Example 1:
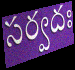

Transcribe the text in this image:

సర్వదః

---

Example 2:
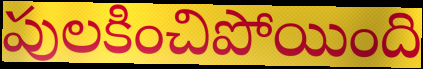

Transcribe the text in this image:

పులకించిపోయింది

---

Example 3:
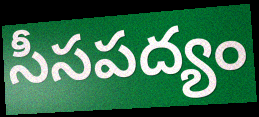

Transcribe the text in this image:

సీసపద్యం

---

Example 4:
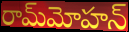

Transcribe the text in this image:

రామ్‌మోహన్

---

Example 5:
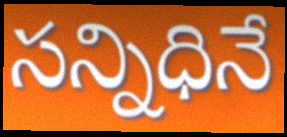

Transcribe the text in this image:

సన్నిధినే